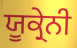
ਯੂਕ੍ਰੇਨੀ